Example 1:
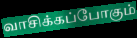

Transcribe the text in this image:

வாசிக்கப்போகும்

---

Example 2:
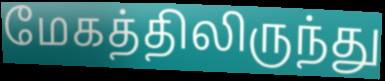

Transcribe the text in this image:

மேகத்திலிருந்து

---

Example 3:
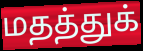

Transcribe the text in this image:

மதத்துக்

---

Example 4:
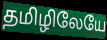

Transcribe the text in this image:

தமிழிலேயே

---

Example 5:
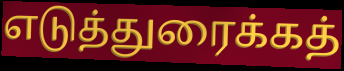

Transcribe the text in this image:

எடுத்துரைக்கத்